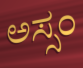
ಅಸ್ಸಂ